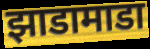
झाडामाडा